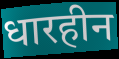
धारहीन